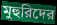
মুহুরিদের